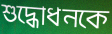
শুদ্ধোধনকে